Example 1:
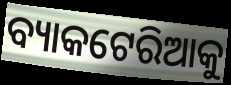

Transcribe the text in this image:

ବ୍ୟାକଟେରିଆକୁ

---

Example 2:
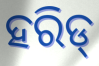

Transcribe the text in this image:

ହରିଡ୍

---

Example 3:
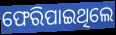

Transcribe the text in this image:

ଫେରିପାଇଥିଲେ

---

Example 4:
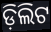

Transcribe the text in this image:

ଡ଼ିଲିଟ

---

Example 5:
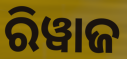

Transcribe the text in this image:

ରିୱାଜ